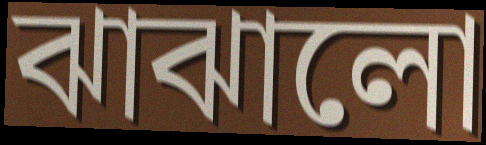
ঝাঝালো